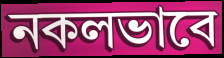
নকলভাবে